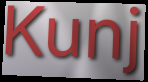
Kunj